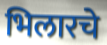
भिलारचे